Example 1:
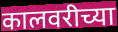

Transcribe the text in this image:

कालवरीच्या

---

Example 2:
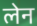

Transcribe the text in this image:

लेन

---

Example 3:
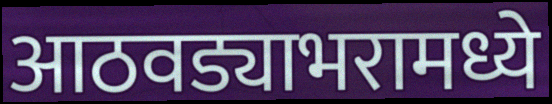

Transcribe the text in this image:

आठवड्याभरामध्ये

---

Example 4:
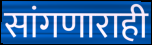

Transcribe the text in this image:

सांगणाराही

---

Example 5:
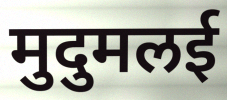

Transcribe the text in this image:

मुदुमलई